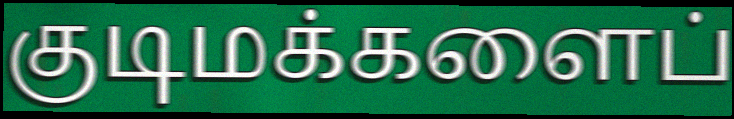
குடிமக்களைப்